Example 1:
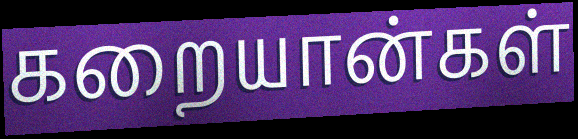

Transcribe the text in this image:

கறையான்கள்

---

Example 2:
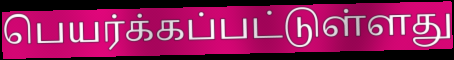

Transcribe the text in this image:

பெயர்க்கப்பட்டுள்ளது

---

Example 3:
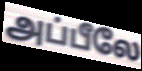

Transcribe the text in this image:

அப்பீலே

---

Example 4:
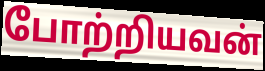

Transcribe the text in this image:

போற்றியவன்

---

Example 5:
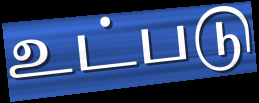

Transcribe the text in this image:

உட்படு